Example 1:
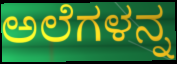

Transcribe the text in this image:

ಅಲೆಗಳನ್ನ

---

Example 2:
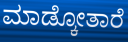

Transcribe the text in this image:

ಮಾಡ್ಕೋತಾರೆ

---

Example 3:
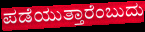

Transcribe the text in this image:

ಪಡೆಯುತ್ತಾರೆಂಬುದು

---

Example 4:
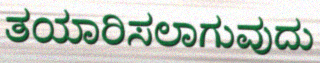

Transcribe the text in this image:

ತಯಾರಿಸಲಾಗುವುದು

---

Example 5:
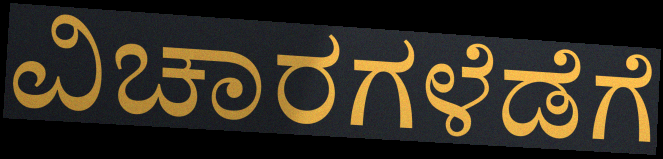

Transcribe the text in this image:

ವಿಚಾರಗಳೆಡೆಗೆ